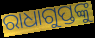
ରାଧାଗୁପ୍ତଙ୍କୁ